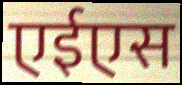
एईएस